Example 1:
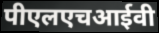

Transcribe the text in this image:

पीएलएचआईवी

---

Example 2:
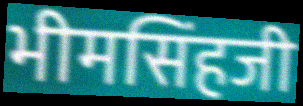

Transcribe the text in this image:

भीमसिंहजी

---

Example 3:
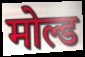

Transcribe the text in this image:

मोल्ड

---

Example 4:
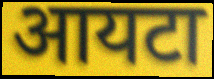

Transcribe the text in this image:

आयटा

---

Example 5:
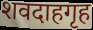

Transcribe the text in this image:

शवदाहगृह